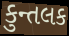
કુન્તલક